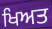
ਖਿਅਤ